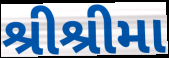
શ્રીશ્રીમા